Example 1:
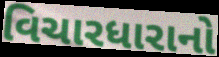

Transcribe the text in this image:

વિચારધારાનો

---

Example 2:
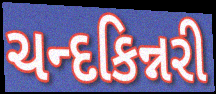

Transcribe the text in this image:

ચન્દકિન્નરી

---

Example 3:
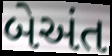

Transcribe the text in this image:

બેઅંત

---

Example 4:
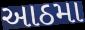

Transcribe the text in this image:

આઠમા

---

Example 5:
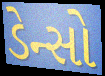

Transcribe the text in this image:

ડેન્સો